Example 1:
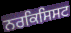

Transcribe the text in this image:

ਨਰਕਿਸਿਸਟ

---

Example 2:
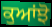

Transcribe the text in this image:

ਕੁਆਂਝੋ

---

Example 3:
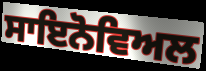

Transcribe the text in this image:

ਸਾਇਨੋਵਿਅਲ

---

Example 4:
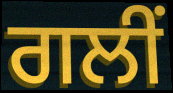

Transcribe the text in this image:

ਗਲੀਂ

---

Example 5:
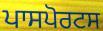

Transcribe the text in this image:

ਪਾਸਪੋਰਟਸ